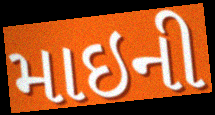
માઇની